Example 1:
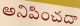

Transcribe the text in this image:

అనిపించదా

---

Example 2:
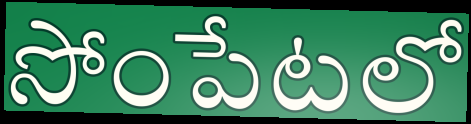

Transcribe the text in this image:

సోంపేటలో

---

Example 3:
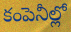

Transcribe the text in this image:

కంపెనీల్లో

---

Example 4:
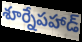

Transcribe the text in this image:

శూర్నేపహాడ్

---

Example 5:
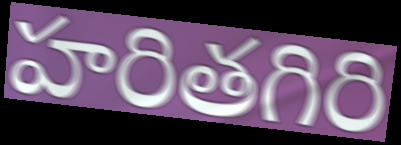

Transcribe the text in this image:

హరితగిరి